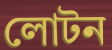
লোটন